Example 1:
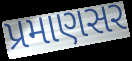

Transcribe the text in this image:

પ્રમાણસર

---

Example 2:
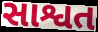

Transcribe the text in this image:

સાશ્વત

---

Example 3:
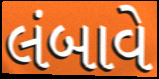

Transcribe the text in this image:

લંબાવે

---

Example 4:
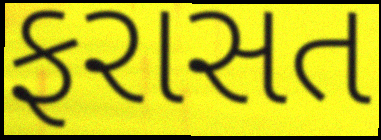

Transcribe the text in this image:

ફરાસત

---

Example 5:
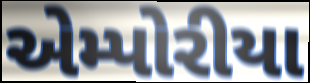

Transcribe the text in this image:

એમ્પોરીયા